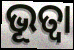
ଭୂତ୍ୱା